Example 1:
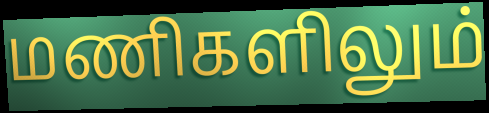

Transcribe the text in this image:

மணிகளிலும்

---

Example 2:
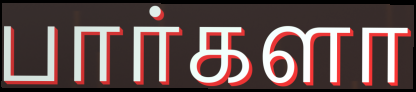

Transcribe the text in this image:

பார்களா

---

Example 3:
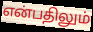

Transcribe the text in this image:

என்பதிலும்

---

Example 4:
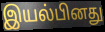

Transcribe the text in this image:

இயல்பினது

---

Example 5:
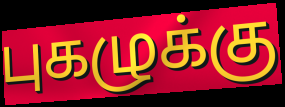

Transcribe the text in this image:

புகழுக்கு